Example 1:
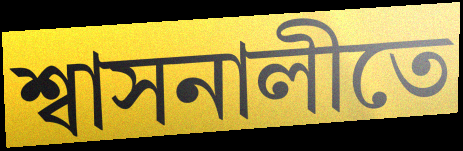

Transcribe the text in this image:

শ্বাসনালীতে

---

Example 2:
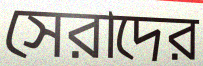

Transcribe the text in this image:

সেরাদের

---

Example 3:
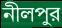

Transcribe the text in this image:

নীলপুর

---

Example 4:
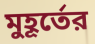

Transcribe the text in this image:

মুহূর্তের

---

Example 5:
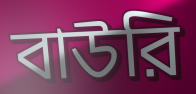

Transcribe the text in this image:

বাউরি